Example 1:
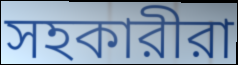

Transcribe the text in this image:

সহকারীরা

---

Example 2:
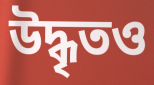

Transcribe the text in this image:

উদ্ধৃতও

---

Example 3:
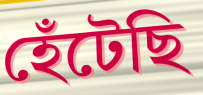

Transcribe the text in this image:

হেঁটেছি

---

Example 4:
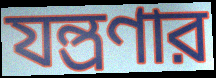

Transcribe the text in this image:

যন্ত্রণার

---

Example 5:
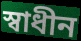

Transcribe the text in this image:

স্বাধীন